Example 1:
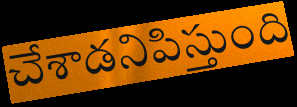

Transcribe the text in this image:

చేశాడనిపిస్తుంది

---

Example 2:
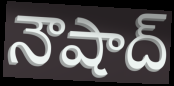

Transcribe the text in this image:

నౌషాద్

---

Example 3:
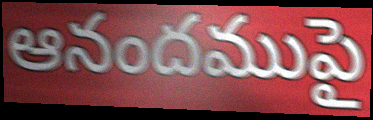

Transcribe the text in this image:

ఆనందముపై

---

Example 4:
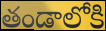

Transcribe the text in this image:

తండాలోకి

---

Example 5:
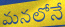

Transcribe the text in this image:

మనలోనే